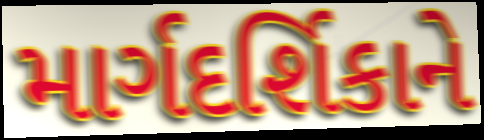
માર્ગદર્શિકાને